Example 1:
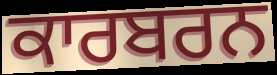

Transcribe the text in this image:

ਕਾਰਬਰਨ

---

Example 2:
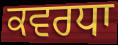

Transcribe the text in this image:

ਕਵਰਧਾ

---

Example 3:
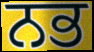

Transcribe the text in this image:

ਨਭ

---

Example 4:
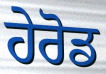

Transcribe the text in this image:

ਹੇਰੋਡ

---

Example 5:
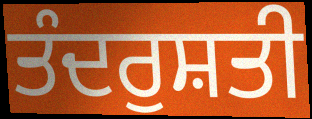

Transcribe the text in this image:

ਤੰਦਰੁਸ਼ਤੀ